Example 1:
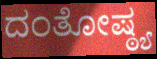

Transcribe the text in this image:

ದಂತೋಷ್ಠ್ಯ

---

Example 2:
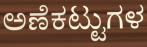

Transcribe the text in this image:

ಅಣೆಕಟ್ಟುಗಳ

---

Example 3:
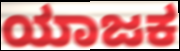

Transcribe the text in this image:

ಯಾಜಕ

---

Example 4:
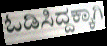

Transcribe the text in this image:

ಓಡಿಸಿದ್ದಕ್ಕಾಗಿ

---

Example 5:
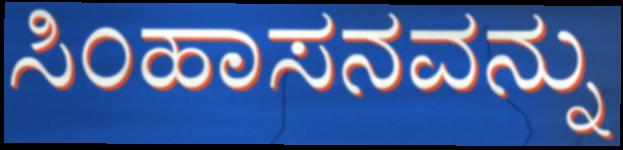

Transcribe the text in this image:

ಸಿಂಹಾಸನವನ್ನು